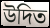
উদিত